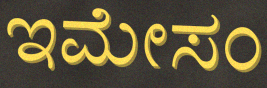
ಇಮೇಸಂ